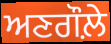
ਅਣਗੌਲ਼ੇ